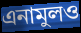
এনামুলও